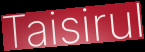
Taisirul